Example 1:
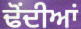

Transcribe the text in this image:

ਢੋਂਦੀਆਂ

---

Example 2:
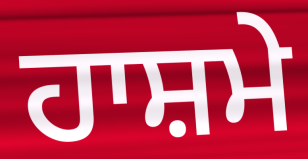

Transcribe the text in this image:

ਹਾਸ਼ਮੇ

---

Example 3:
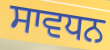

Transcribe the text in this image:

ਸਾਵਧਨ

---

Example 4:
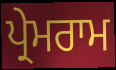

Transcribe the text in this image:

ਪ੍ਰੇਮਰਾਮ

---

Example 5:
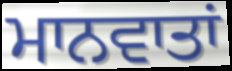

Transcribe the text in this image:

ਮਾਨਵਾਤਾਂ